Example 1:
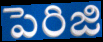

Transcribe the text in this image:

పెరిజి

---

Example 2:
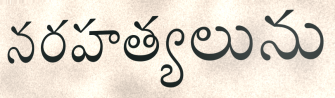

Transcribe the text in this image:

నరహత్యలును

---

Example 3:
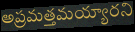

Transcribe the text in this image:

అప్రమత్తమయ్యారని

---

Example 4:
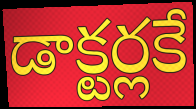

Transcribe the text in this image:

డాక్టర్లకే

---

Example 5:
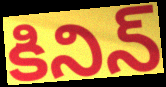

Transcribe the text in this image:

కినిన్